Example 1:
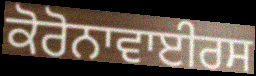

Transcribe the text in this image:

ਕੋਰੋਨਾਵਾਈਰਸ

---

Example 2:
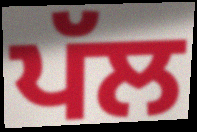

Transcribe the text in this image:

ਪੱਲ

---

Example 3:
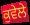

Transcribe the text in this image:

ਕੁਵੇਲੇ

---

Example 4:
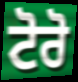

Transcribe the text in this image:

ਟੋਰੋ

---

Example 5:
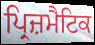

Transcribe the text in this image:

ਪ੍ਰਿਜ਼ਮੈਟਿਕ